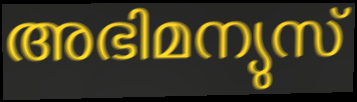
അഭിമന്യുസ്